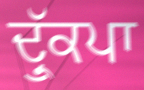
ਦ੍ਰੁੱਕਪਾ